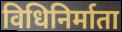
विधिनिर्माता